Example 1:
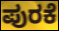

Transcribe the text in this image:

ಪುರಕೆ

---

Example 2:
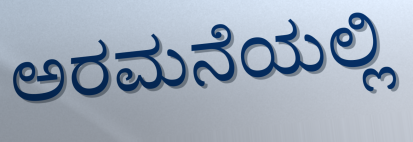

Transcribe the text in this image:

ಅರಮನೆಯಲ್ಲಿ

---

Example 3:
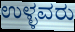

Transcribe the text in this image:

ಉಳ್ಳವರು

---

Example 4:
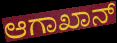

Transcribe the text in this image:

ಆಗಾಖಾನ್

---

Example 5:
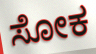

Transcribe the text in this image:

ಸೋಕ